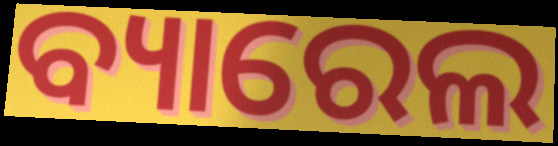
ବ୍ୟାରେଲ